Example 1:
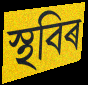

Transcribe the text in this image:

স্থবিৰ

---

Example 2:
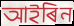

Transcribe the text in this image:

আইৰিন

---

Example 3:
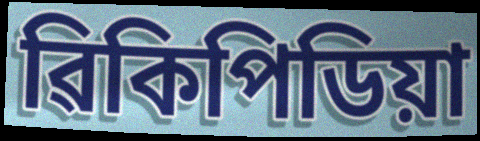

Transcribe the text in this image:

ৱিকিপিডিয়া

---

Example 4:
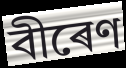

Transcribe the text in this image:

বীৰেণ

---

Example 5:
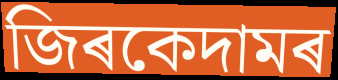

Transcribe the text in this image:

জিৰকেদামৰ